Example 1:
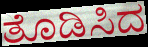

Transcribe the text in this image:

ತೊಡಿಸಿದ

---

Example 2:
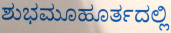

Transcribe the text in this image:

ಶುಭಮೂಹೂರ್ತದಲ್ಲಿ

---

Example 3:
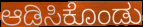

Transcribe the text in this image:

ಆಡಿಸಿಕೊಂಡು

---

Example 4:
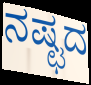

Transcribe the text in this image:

ನಷ್ಟದ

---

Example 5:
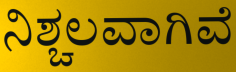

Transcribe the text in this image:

ನಿಶ್ಚಲವಾಗಿವೆ